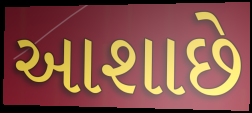
આશાછે